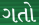
ગતો